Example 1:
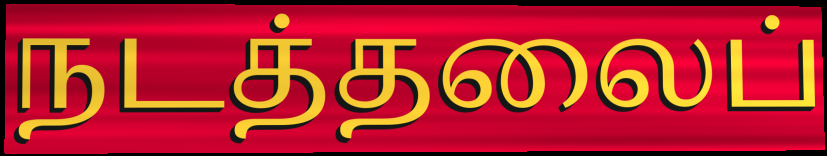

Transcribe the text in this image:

நடத்தலைப்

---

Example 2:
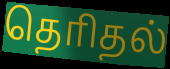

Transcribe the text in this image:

தெரிதல்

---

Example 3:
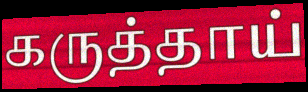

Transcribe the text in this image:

கருத்தாய்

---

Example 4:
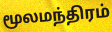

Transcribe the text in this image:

மூலமந்திரம்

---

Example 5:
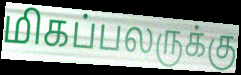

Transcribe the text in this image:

மிகப்பலருக்கு